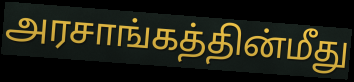
அரசாங்கத்தின்மீது